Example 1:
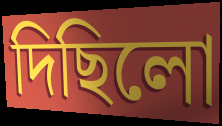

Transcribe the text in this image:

দিছিলো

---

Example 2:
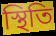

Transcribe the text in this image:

স্থিতি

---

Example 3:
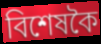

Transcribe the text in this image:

বিশেষকৈ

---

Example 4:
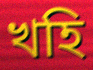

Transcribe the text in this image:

খহি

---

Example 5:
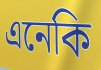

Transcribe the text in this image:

এনেকি